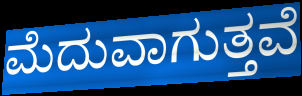
ಮೆದುವಾಗುತ್ತವೆ